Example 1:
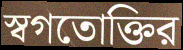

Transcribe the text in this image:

স্বগতোক্তির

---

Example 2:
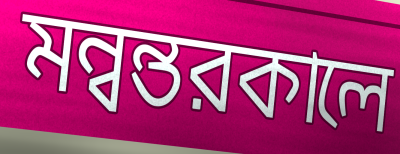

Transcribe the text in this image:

মন্বন্তরকালে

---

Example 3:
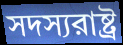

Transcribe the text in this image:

সদস্যরাষ্ট্র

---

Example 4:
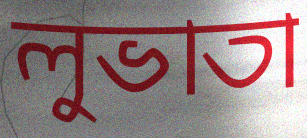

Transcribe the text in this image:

লুভাতা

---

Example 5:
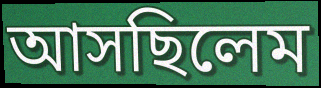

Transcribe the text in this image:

আসছিলেম